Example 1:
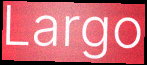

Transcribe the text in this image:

Largo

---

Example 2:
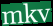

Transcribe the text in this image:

mkv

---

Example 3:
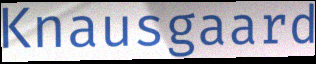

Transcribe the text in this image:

Knausgaard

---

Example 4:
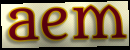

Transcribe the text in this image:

aem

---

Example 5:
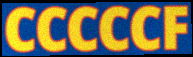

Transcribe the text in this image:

CCCCCF